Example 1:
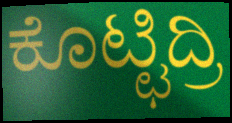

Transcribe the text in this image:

ಕೊಟ್ಟಿದ್ರಿ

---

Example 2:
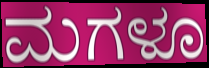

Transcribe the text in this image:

ಮಗಳೂ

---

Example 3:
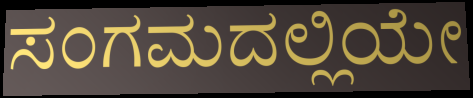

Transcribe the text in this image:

ಸಂಗಮದಲ್ಲಿಯೇ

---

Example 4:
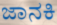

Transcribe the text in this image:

ಜಾನಕಿ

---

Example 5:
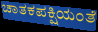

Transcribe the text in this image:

ಚಾತಕಪಕ್ಷಿಯಂತೆ